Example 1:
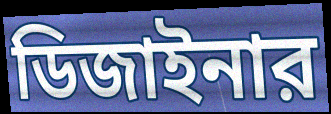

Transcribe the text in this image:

ডিজাইনার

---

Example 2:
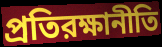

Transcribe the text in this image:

প্রতিরক্ষানীতি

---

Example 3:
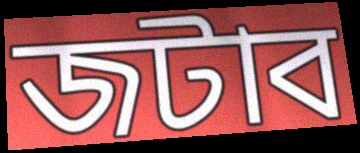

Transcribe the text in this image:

জটাব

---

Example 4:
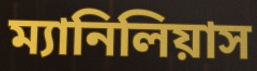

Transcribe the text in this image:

ম্যানিলিয়াস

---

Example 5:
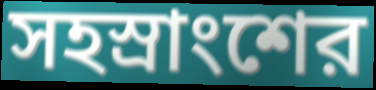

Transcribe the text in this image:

সহস্রাংশের